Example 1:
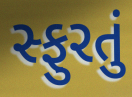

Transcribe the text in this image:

સ્ફુરતું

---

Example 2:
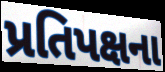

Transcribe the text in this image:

પ્રતિપક્ષના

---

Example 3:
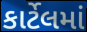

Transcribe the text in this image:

કાર્ટેલમાં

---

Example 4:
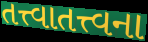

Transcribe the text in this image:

તત્ત્વાતત્ત્વના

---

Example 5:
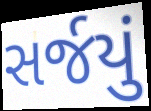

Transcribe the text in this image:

સર્જયું